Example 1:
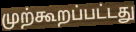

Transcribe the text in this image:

முற்கூறப்பட்டது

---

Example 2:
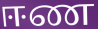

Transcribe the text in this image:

ஈண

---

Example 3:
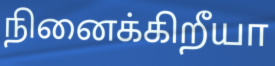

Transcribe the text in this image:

நினைக்கிறீயா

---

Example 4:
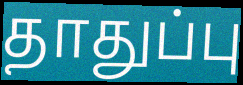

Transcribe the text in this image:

தாதுப்பு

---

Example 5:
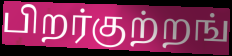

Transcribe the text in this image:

பிறர்குற்றங்